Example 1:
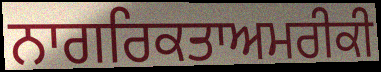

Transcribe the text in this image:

ਨਾਗਰਿਕਤਾਅਮਰੀਕੀ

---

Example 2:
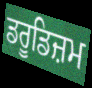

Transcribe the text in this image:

ਡਰੂਡਿਜ਼ਮ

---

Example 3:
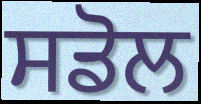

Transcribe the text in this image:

ਸਡੋਲ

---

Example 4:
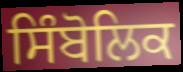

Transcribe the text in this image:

ਸਿੰਬੋਲਿਕ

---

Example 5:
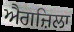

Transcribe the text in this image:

ਐਗਜ਼ਿਲਾ